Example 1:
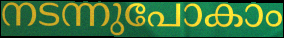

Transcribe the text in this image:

നടന്നുപോകാം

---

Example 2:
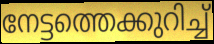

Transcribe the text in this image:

നേട്ടത്തെക്കുറിച്ച്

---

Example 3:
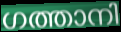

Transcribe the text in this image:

ഗത്താനി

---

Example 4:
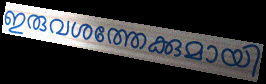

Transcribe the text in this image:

ഇരുവശത്തേക്കുമായി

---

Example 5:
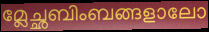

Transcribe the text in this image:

മ്ലേച്ഛബിംബങ്ങളാലോ